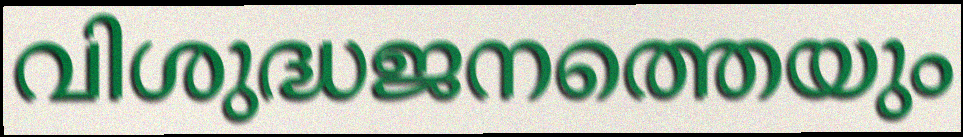
വിശുദ്ധജനത്തെയും